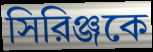
সিরিঞ্জকে